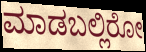
ಮಾಡಬಲ್ಲಿರೋ